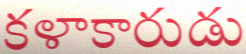
కళాకారుడు